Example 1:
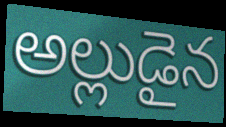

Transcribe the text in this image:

అల్లుడైన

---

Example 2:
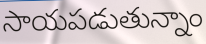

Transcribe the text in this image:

సాయపడుతున్నాం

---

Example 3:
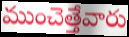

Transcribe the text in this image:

ముంచెత్తేవారు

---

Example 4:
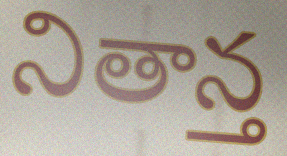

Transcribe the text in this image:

నితాన్త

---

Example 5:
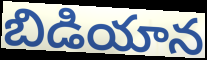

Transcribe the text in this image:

బిడియాన